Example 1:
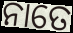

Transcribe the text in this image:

ନାତେ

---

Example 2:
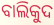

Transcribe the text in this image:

ବାଲିକୁଦ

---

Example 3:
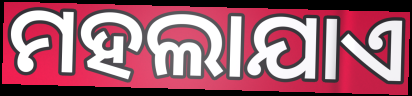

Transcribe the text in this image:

ମହଲାଯାଏ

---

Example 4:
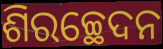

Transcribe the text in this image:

ଶିରଚ୍ଛେଦନ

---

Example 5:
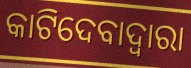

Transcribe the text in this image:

କାଟିଦେବାଦ୍ଵାରା